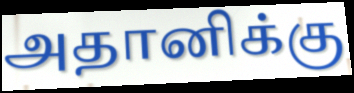
அதானிக்கு